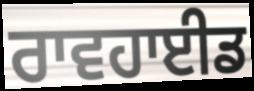
ਰਾਵਹਾਈਡ